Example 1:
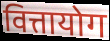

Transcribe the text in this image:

वित्तायोग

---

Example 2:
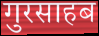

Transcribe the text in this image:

गुरसाहब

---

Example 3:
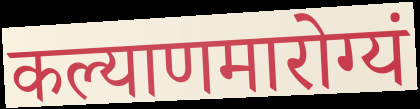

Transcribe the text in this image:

कल्याणमारोग्यं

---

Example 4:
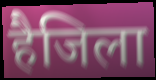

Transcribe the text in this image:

हैजिला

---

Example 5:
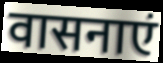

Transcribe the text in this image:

वासनाएं